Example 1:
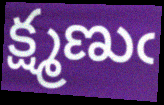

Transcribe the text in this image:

క్ష్మణుఁ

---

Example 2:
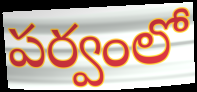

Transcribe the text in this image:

పర్వంలో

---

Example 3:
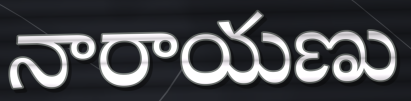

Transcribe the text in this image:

నారాయణు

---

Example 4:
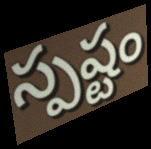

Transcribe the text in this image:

స్పష్టం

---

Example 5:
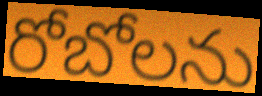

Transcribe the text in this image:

రోబోలను